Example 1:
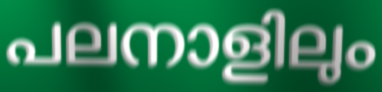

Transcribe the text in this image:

പലനാളിലും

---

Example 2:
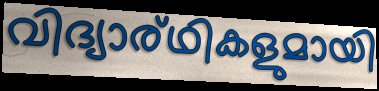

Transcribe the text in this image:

വിദ്യാര്ഥികളുമായി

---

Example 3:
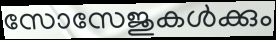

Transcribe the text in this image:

സോസേജുകൾക്കും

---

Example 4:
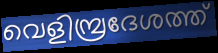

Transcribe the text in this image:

വെളിമ്പ്രദേശത്ത്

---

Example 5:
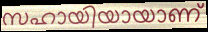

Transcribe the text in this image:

സഹായിയായാണ്